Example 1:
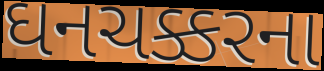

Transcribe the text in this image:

ઘનચક્કરના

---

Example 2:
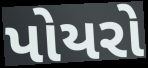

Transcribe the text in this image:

પોયરો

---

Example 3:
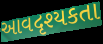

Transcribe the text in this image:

આવદૃશ્યકતા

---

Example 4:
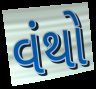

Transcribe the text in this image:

વંથો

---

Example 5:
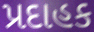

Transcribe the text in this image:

પ્રદાહક